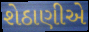
શેઠાણીએ